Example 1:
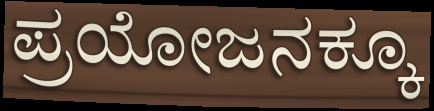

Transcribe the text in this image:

ಪ್ರಯೋಜನಕ್ಕೂ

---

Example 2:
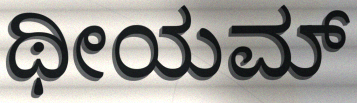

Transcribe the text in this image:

ಥೀಯಮ್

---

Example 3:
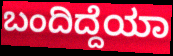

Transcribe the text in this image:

ಬಂದಿದ್ದೆಯಾ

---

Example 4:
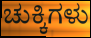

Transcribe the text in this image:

ಚುಕ್ಕಿಗಳು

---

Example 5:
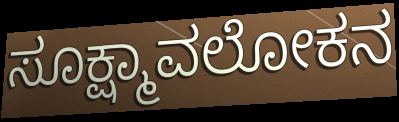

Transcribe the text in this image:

ಸೂಕ್ಷ್ಮಾವಲೋಕನ